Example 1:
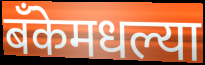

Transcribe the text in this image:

बँकेमधल्या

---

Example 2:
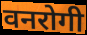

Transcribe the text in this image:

वनरोगी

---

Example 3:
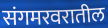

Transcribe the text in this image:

संगमरवरातील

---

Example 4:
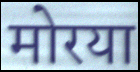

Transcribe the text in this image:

मोरया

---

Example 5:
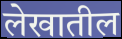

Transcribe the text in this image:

लेखातील